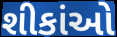
શીકાંઓ